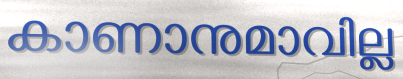
കാണാനുമാവില്ല